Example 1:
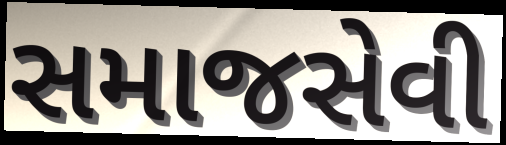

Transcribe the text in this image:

સમાજસેવી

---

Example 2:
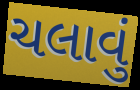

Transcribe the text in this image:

ચલાવું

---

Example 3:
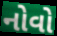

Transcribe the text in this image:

નોવો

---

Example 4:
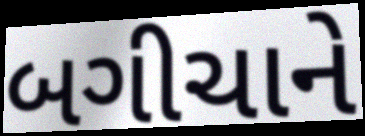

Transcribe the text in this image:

બગીચાને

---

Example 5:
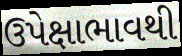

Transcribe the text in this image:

ઉપેક્ષાભાવથી